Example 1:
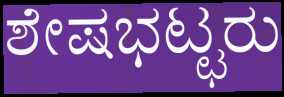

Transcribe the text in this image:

ಶೇಷಭಟ್ಟರು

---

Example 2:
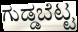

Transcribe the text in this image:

ಗುಡ್ಡಬೆಟ್ಟ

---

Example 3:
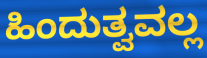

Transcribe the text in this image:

ಹಿಂದುತ್ವವಲ್ಲ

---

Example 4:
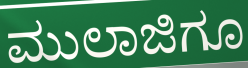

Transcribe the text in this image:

ಮುಲಾಜಿಗೂ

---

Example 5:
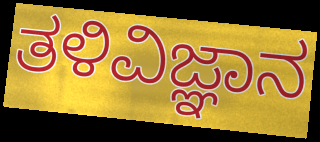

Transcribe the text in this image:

ತಳಿವಿಜ್ಞಾನ